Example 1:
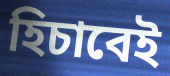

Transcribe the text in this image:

হিচাবেই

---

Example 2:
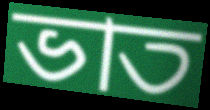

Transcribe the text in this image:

ভাত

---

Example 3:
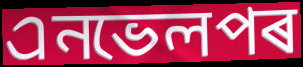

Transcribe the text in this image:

এনভেলপৰ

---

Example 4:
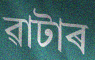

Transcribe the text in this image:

ৱাটাৰ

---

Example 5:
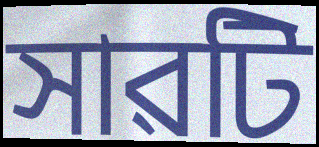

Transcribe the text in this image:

সাৱটি